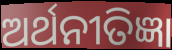
ଅର୍ଥନୀତିଜ୍ଞା